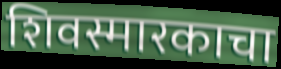
शिवस्मारकाचा